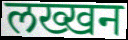
लख्खन